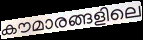
കൗമാരങ്ങളിലെ